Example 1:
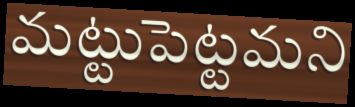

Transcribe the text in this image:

మట్టుపెట్టమని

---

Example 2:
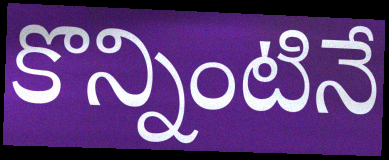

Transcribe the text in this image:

కొన్నింటినే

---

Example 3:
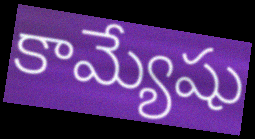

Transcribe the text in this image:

కామ్యేషు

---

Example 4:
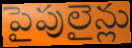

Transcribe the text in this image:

పైపులైన్లు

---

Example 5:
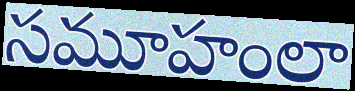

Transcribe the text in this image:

సమూహంలా